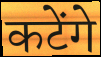
कटेंगे